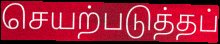
செயற்படுத்தப்